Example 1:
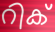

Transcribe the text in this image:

റിക്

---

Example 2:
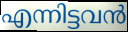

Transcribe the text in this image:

എന്നിട്ടവൻ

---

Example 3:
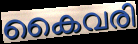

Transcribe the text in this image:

കൈവരി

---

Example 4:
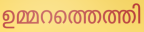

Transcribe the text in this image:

ഉമ്മറത്തെത്തി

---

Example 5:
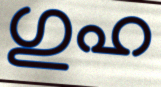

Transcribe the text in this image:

ഗുഹ